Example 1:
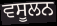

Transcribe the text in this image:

ਵਸੂਲਨ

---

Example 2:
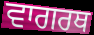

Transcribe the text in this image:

ਵਾਗਰਥ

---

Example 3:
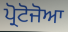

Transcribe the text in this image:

ਪ੍ਰੋਟੋਜੋਆ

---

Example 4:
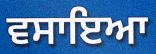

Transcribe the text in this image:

ਵਸਾਇਆ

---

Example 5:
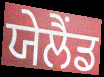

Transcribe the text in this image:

ਯੇਲੈਂਡ